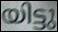
യിട്ടു